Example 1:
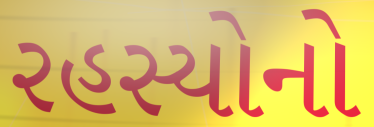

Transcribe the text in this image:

રહસ્યોનો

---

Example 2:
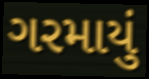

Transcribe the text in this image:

ગરમાયું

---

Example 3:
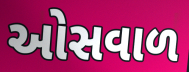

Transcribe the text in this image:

ઓસવાળ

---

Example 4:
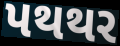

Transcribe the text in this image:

પથથર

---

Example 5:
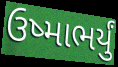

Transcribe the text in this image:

ઉષ્માભર્યું